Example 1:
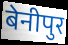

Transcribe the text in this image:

बेनीपुर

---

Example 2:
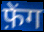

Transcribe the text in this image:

फ़ेंग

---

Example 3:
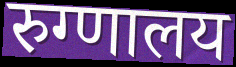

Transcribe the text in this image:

रुग्णालय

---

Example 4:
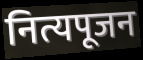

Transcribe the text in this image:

नित्यपूजन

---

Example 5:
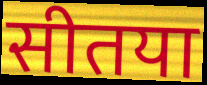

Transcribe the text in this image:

सीतया